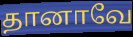
தானாவே